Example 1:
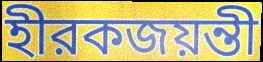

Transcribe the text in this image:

হীরকজয়ন্তী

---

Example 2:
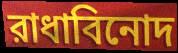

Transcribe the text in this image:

রাধাবিনোদ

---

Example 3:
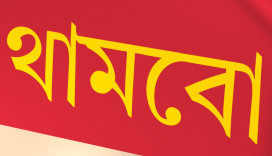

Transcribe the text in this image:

থামবো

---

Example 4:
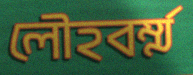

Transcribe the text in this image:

লৌহবর্ম্ম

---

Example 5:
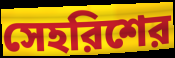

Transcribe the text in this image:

সেহরিশের